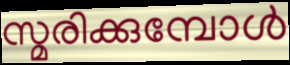
സ്മരിക്കുമ്പോൾ